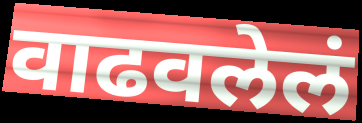
वाढवलेलं